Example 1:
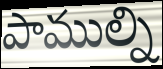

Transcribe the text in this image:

పాముల్ని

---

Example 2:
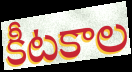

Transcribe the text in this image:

కీటకాల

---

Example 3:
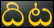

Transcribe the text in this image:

దిట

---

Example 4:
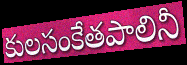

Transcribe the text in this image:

కులసంకేతపాలినీ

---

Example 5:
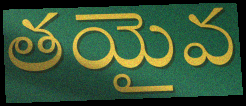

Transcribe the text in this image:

తయైవ